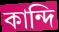
কান্দি